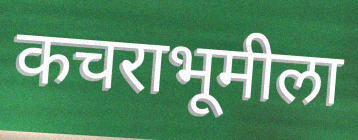
कचराभूमीला